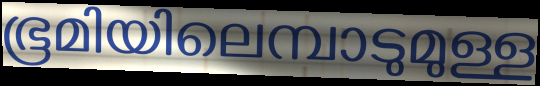
ഭൂമിയിലെമ്പാടുമുള്ള